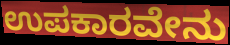
ಉಪಕಾರವೇನು